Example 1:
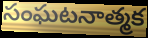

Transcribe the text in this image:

సంఘటనాత్మక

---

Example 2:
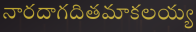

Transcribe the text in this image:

నారదాగదితమాకలయ్య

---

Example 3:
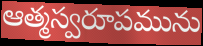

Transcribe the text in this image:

ఆత్మస్వరూపమును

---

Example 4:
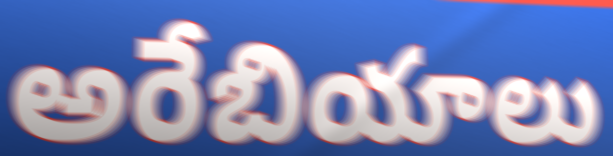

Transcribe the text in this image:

అరేబియాలు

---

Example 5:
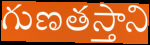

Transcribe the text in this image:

గుణతస్తాని